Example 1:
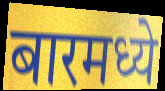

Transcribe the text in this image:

बारमध्ये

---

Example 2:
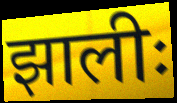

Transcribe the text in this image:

झालीः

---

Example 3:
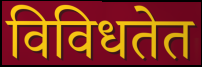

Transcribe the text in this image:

विविधतेत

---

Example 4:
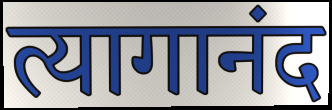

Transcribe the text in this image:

त्यागानंद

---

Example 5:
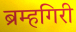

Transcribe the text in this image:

ब्रम्हगिरी